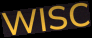
WISC